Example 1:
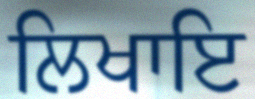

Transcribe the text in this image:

ਲਿਖਾਇ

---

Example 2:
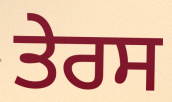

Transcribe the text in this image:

ਤੇਰਸ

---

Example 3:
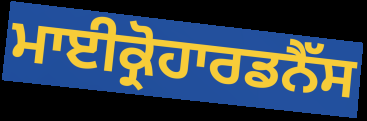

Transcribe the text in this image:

ਮਾਈਕ੍ਰੋਹਾਰਡਨੈੱਸ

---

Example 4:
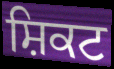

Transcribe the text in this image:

ਸ਼ਿਕਟ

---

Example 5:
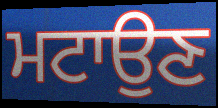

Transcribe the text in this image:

ਮਟਾਉਣ